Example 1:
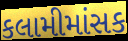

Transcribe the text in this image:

કલામીમાંસક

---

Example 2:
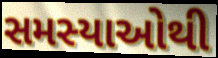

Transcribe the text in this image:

સમસ્યાઓથી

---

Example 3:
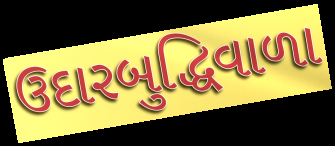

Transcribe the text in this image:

ઉદારબુદ્ધિવાળા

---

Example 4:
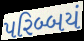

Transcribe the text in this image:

પરિબ્બયં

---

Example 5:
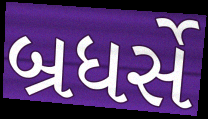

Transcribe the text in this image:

બ્રધર્સે